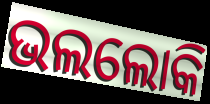
ଭଲଲୋକି